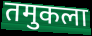
तमुकला